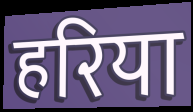
हरिया